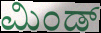
ಮಿಂಡ್